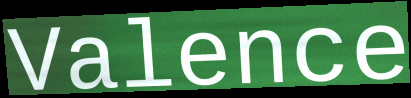
Valence